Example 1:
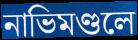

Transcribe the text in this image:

নাভিমণ্ডলে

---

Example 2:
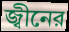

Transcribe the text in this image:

জ্বীনের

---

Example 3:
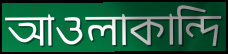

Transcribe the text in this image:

আওলাকান্দি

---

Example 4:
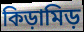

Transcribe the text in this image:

কিড়ামিড়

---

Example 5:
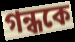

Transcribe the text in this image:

গন্ধকে